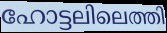
ഹോട്ടലിലെത്തി